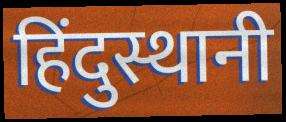
हिंदुस्थानी